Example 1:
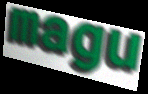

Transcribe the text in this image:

magu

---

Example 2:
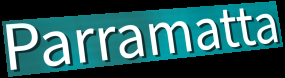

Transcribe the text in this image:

Parramatta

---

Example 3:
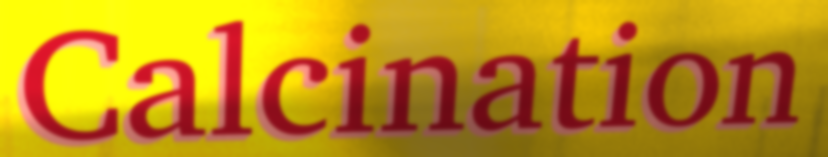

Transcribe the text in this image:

Calcination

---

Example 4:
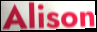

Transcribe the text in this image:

Alison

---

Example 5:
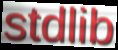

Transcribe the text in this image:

stdlib